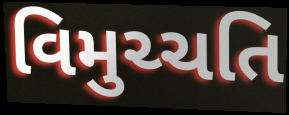
વિમુચ્ચતિ